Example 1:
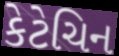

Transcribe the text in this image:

કેટેચિન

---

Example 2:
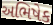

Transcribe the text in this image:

અભિષેક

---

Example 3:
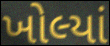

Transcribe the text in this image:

ખોલ્યાં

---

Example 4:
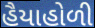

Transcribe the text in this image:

હૈયાહોળી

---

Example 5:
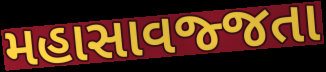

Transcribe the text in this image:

મહાસાવજ્જતા